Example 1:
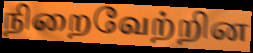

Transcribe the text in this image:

நிறைவேற்றின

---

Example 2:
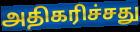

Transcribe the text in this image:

அதிகரிச்சது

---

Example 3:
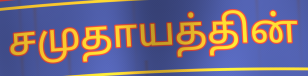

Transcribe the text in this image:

சமுதாயத்தின்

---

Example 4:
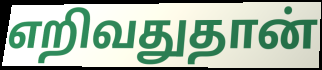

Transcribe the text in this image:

எறிவதுதான்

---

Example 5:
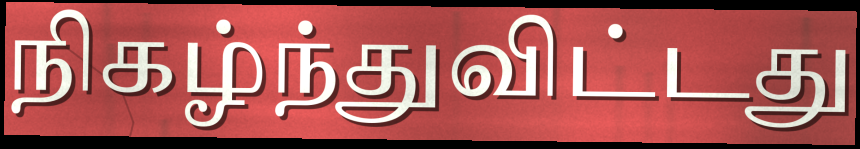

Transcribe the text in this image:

நிகழ்ந்துவிட்டது